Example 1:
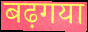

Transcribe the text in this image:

बढ़गया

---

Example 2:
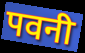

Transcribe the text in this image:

पवनी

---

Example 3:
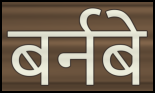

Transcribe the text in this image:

बर्नबे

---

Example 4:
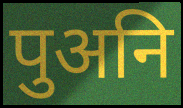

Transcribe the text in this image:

पुअनि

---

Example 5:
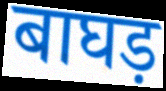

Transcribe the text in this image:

बाघड़